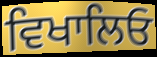
ਵਿਖਾਲਿਓ